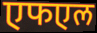
एफएल